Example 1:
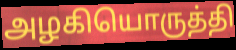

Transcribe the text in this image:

அழகியொருத்தி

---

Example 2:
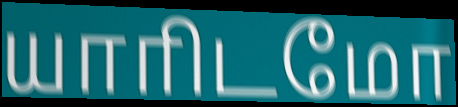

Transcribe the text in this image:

யாரிடமோ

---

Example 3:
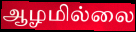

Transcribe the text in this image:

ஆழமில்லை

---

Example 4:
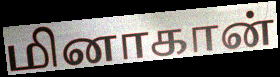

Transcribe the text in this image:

மினாகான்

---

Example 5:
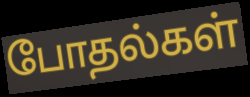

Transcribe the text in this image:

போதல்கள்